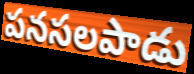
పనసలపాడు